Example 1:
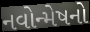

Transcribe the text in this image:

નવોન્મેષનો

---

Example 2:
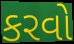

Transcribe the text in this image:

કરવો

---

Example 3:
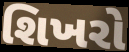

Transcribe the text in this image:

શિખરો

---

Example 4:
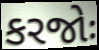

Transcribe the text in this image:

કરજોઃ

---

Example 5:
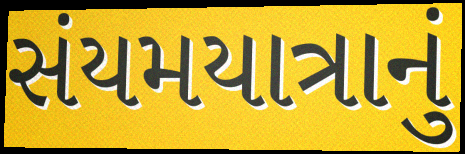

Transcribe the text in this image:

સંયમયાત્રાનું